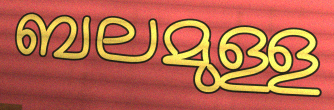
ബലമുള്ള